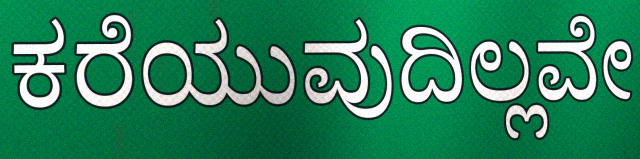
ಕರೆಯುವುದಿಲ್ಲವೇ